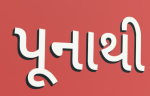
પૂનાથી